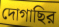
দোগাছির